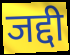
जद्दी